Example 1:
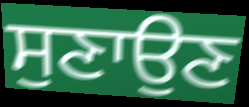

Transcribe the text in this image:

ਸੁਣਾਉਣ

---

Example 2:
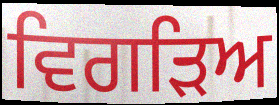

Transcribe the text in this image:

ਵਿਗੜਿਅ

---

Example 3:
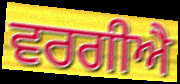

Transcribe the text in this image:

ਵਰਗੀਐ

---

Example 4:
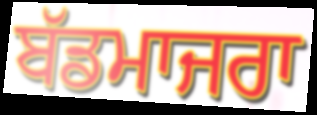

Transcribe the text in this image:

ਬੱਡਮਾਜਰਾ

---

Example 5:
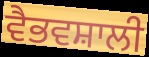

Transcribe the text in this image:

ਵੈਭਵਸ਼ਾਲੀ